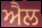
ਐਲ